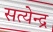
सत्येन्द्र